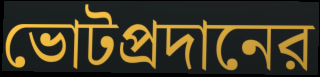
ভোটপ্রদানের